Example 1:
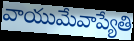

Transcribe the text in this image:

వాయుమేవాప్యేతి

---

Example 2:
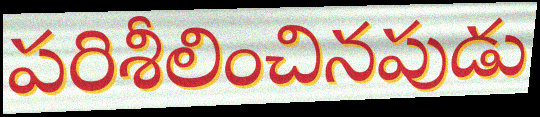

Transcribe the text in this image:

పరిశీలించినపుడు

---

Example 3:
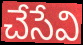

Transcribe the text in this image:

చేసేవి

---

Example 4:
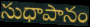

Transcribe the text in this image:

సుధాపానం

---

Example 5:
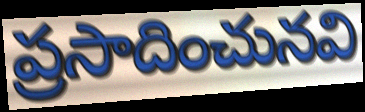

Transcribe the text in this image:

ప్రసాదించునవి